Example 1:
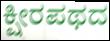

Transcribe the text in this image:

ಕ್ಷೀರಪಥದ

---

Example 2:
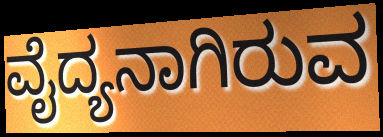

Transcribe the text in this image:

ವೈದ್ಯನಾಗಿರುವ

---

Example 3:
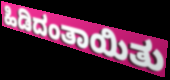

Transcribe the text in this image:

ಹಿಡಿದಂತಾಯಿತು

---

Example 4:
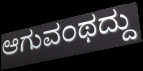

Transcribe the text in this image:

ಆಗುವಂಥದ್ದು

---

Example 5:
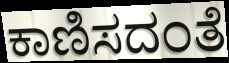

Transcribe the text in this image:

ಕಾಣಿಸದಂತೆ